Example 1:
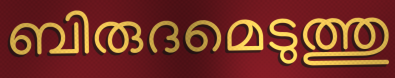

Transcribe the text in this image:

ബിരുദമെടുത്തു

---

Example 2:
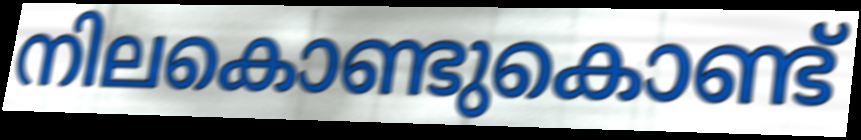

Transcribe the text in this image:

നിലകൊണ്ടുകൊണ്ട്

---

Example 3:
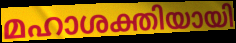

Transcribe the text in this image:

മഹാശക്തിയായി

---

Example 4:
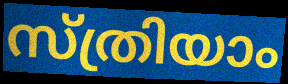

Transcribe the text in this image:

സ്ത്രിയാം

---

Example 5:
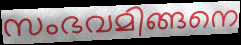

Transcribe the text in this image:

സംഭവമിങ്ങനെ